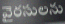
వైరసులను